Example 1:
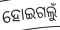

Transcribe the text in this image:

ହୋଇଗଲୁଁ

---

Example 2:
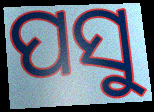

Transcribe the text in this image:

ପସୁ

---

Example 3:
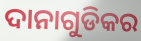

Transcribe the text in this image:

ଦାନାଗୁଡିକର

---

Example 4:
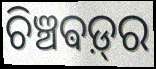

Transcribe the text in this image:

ଚିଞ୍ଚଵଡ଼୍‌ର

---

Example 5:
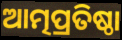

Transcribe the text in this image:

ଆତ୍ମପ୍ରତିଷ୍ଠା